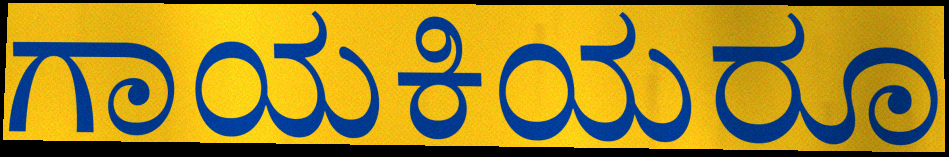
ಗಾಯಕಿಯರೂ